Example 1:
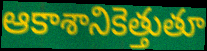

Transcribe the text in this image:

ఆకాశానికెత్తుతూ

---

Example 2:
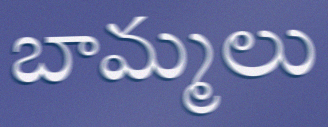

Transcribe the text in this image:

బామ్మలు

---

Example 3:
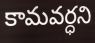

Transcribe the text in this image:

కామవర్ధని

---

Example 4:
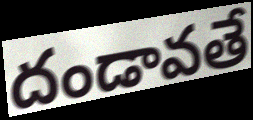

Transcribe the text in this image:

దండావతే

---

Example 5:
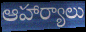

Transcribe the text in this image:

ఆహార్యాలు